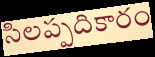
సిలప్పదికారం